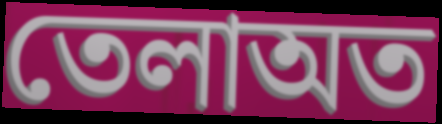
তেলাঅত